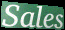
Sales